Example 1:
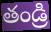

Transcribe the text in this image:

తండ్రి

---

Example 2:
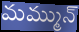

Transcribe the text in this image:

మమ్మున్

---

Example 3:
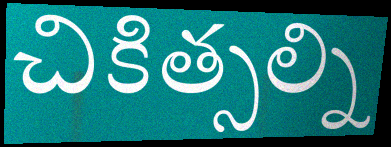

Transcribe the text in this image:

చికిత్సల్ని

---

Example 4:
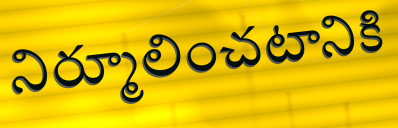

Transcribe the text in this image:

నిర్మూలించటానికి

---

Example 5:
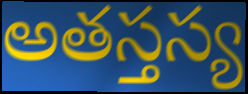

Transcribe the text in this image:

అతస్తస్య